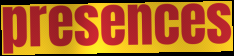
presences